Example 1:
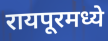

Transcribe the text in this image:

रायपूरमध्ये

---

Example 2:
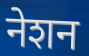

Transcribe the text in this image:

नेशन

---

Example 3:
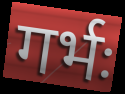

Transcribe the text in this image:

गर्भः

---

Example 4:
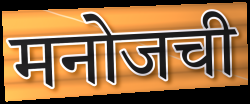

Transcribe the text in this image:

मनोजची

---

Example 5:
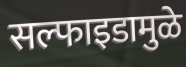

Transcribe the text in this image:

सल्फाइडामुळे